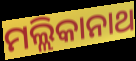
ମଲ୍ଲିକାନାଥ